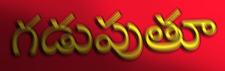
గడుపుతూ